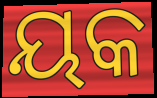
ୟକ